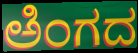
ಅಿಂಗದ